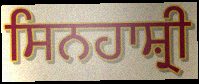
ਸਿਨਹਾਸ਼੍ਰੀ